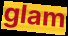
glam